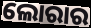
ଲୋରାର